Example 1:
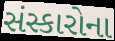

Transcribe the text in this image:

સંસ્કારોના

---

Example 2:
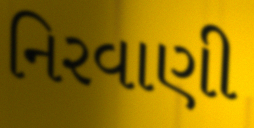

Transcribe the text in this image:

નિરવાણી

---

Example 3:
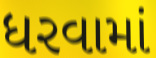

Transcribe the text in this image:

ધરવામાં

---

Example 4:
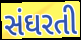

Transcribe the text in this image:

સંઘરતી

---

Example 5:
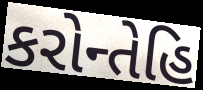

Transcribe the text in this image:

કરોન્તેહિ